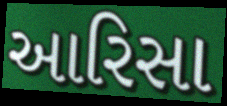
આરિસા